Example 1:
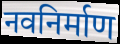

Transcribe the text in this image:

नवनिर्माण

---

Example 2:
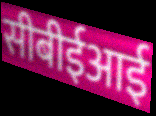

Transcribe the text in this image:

सीबीईआई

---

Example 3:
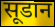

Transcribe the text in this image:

सूडान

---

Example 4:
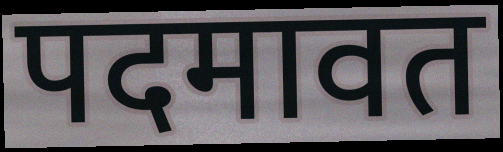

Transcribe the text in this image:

पदमावत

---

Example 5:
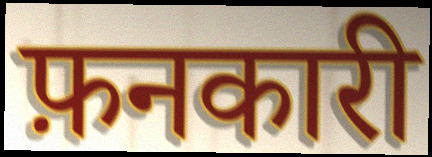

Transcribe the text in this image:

फ़नकारी